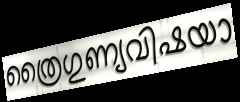
ത്രൈഗുണ്യവിഷയാ